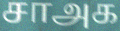
சாஅக